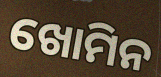
ଖୋମିନ